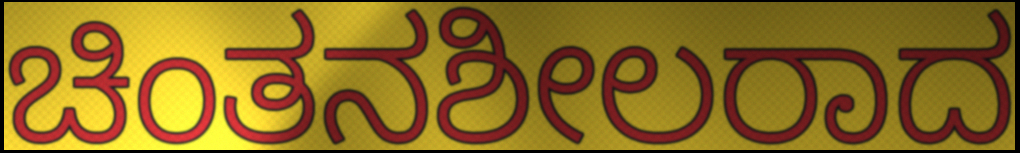
ಚಿಂತನಶೀಲರಾದ